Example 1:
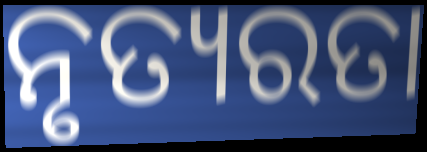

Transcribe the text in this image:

ନୃତ୍ୟରତା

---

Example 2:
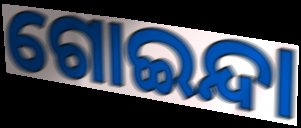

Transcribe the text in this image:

ଗୋଇନ୍ଦା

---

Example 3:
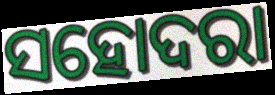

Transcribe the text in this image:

ସହୋଦରା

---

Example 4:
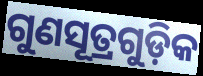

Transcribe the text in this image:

ଗୁଣସୂତ୍ରଗୁଡ଼ିକ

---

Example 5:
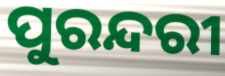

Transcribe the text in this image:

ପୁରନ୍ଦରୀ